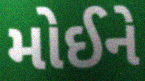
મોઈને